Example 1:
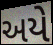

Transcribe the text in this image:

અયે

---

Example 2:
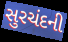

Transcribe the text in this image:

સુરચંદની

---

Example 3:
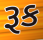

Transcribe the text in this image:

રૂક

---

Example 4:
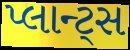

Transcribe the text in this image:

પ્લાન્ટ્સ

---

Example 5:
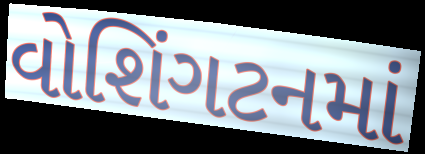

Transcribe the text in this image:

વોશિંગટનમાં